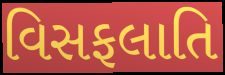
વિસફલાતિ